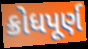
ક્રોધપૂર્ણ